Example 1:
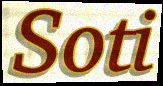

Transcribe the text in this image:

Soti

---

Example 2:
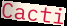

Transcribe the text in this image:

Cacti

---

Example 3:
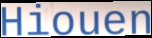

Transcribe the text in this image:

Hiouen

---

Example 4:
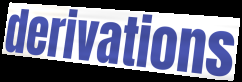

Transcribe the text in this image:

derivations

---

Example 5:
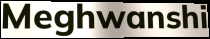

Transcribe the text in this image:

Meghwanshi